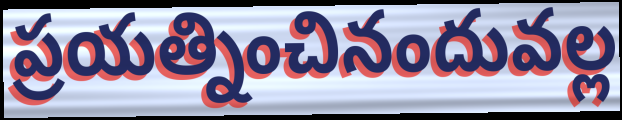
ప్రయత్నించినందువల్ల